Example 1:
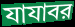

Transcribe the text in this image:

যাযাবর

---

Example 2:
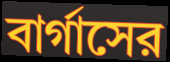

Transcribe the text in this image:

বার্গাসের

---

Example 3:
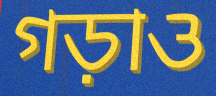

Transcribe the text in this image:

গড়াও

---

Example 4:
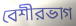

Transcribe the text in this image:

বেশীরভাগ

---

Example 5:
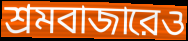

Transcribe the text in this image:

শ্রমবাজারেও